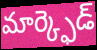
మార్క్ఫెడ్